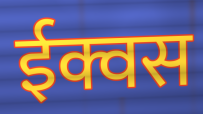
ईक्‍वस